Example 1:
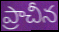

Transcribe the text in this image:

ప్రాచీన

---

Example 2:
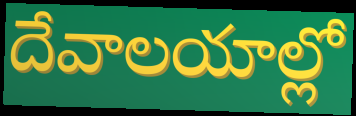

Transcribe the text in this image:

దేవాలయాల్లో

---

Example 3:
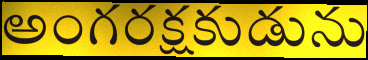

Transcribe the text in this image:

అంగరక్షకుడును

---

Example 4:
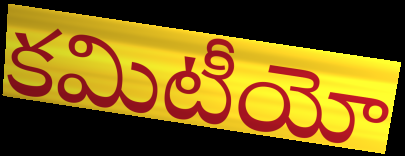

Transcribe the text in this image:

కమిటీయో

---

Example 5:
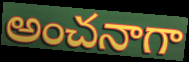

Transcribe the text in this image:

అంచనాగా